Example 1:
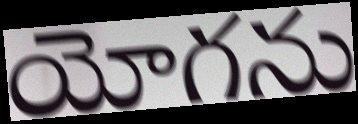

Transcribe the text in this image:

యోగను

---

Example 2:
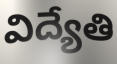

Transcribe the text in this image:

విద్యేతి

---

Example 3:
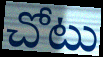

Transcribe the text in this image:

చోటు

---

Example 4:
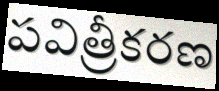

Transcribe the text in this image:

పవిత్రీకరణ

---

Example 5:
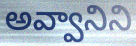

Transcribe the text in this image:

అవ్వానిని